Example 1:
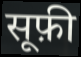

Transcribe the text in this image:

सूफ़ी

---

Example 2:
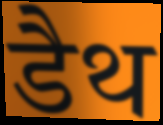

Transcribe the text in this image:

डैथ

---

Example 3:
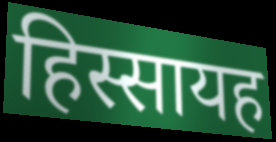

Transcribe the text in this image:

हिस्सायह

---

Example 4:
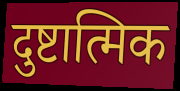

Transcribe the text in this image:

दुष्टात्मिक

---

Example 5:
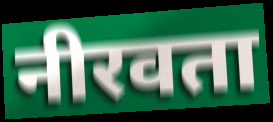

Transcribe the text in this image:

नीरवता